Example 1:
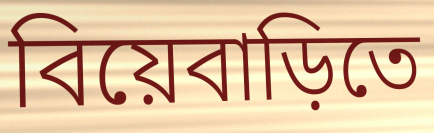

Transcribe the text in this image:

বিয়েবাড়িতে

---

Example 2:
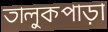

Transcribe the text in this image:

তালুকপাড়া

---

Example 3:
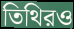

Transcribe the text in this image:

তিথিরও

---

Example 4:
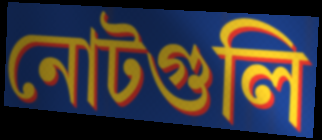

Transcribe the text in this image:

নোটগুলি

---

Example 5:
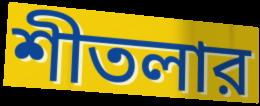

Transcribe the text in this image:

শীতলার